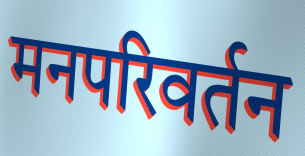
मनपरिवर्तन